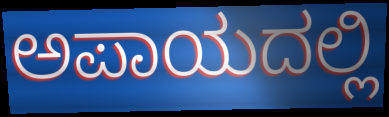
ಅಪಾಯದಲ್ಲಿ